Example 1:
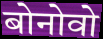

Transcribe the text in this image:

बोनोवो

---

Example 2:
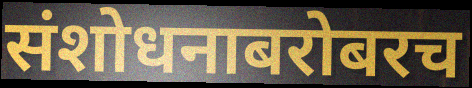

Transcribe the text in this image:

संशोधनाबरोबरच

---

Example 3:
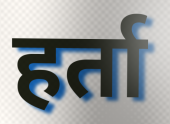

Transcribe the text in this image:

हर्ता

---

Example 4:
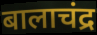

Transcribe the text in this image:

बालाचंद्र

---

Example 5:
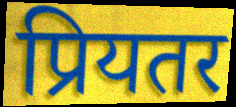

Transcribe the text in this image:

प्रियतर